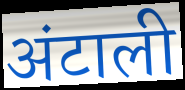
अंटाली